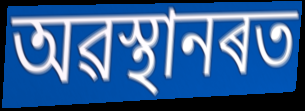
অৱস্থানৰত